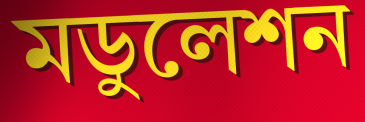
মডুলেশন